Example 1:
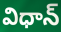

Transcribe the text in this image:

విధాన్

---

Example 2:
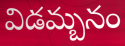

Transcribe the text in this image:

విడమ్బనం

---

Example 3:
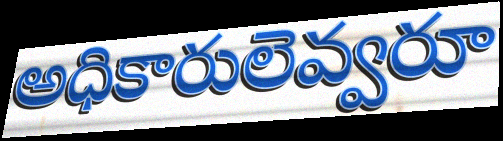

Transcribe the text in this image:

అధికారులెవ్వరూ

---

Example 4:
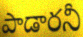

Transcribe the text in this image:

పాడారనీ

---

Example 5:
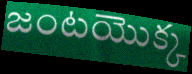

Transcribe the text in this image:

జంటయొక్క